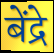
बेंद्रे